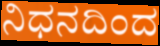
ನಿಧನದಿಂದ